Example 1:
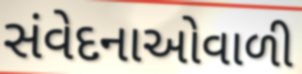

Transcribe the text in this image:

સંવેદનાઓવાળી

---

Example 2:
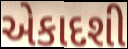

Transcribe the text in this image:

એકાદશી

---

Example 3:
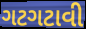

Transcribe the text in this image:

ગટગટાવી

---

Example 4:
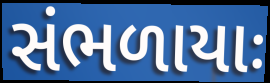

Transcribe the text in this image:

સંભળાયાઃ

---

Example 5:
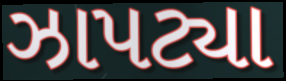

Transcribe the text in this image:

ઝાપટ્યા